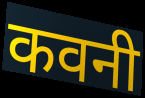
कवनी